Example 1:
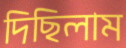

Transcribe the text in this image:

দিছিলাম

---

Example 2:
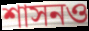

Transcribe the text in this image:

শাসনও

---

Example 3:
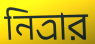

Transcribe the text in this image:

নিত্রার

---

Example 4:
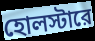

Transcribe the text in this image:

হোলস্টারে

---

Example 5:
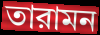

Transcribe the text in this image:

তারামন